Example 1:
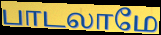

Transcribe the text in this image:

பாடலாமே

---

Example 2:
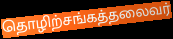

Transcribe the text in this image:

தொழிற்சங்கத்தலைவர்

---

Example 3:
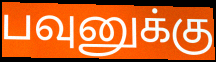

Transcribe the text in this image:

பவுனுக்கு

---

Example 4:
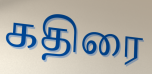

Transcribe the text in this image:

கதிரை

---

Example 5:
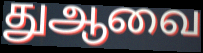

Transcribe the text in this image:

துஆவை